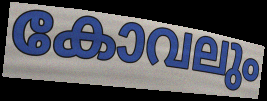
കോവലും